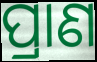
ପ୍ରାଣ